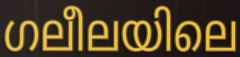
ഗലീലയിലെ